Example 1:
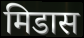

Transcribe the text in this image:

मिडास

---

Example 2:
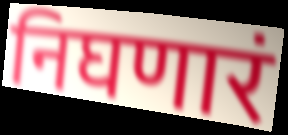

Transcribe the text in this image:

निघणारं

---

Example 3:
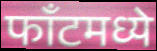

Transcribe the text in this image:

फाँटमध्ये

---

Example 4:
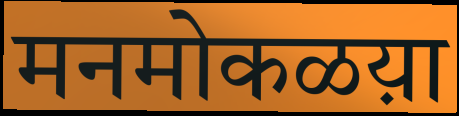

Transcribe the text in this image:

मनमोकळय़ा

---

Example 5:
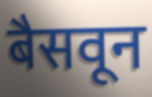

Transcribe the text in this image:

बैसवून